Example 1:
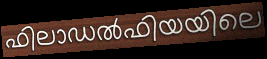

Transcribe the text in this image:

ഫിലാഡൽഫിയയിലെ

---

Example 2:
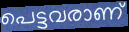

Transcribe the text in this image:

പെട്ടവരാണ്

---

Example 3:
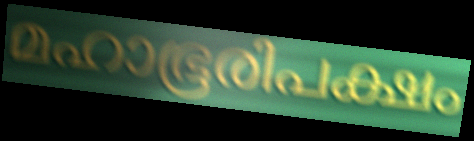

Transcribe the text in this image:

മഹാഭൂരിപക്ഷം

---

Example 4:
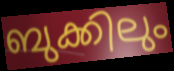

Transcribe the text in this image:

ബുക്കിലും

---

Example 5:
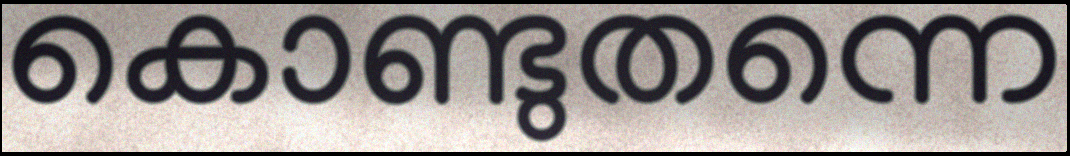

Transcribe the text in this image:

കൊണ്ടുതന്നെ